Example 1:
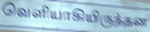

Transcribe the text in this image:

வெளியாகியிருந்தன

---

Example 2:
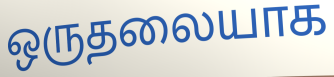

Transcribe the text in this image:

ஒருதலையாக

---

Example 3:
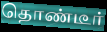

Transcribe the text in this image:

தொண்டீர்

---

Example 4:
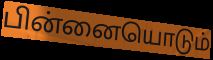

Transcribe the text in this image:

பின்னையொடும்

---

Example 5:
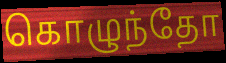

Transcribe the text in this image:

கொழுந்தோ